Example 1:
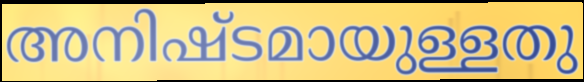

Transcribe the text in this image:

അനിഷ്ടമായുള്ളതു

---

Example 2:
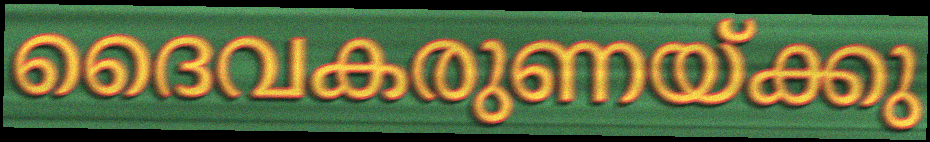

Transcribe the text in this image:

ദൈവകരുണയ്ക്കു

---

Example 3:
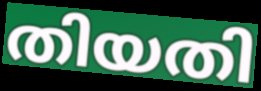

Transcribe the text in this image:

തിയതി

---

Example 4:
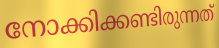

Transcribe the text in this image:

നോക്കിക്കണ്ടിരുന്നത്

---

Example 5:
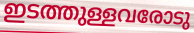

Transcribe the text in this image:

ഇടത്തുള്ളവരോടു